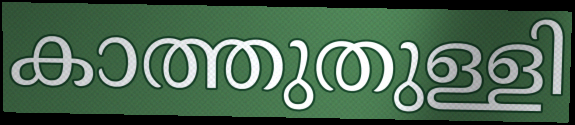
കാത്തുതുള്ളി